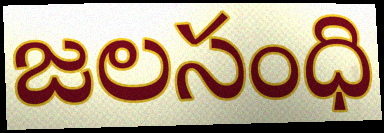
జలసంధి